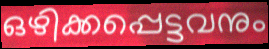
ഒഴിക്കപ്പെട്ടവനും